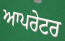
ਆਪਰੇਟਰ